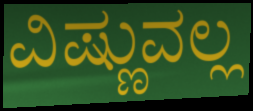
ವಿಷ್ಣುವಲ್ಲ